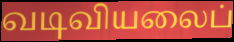
வடிவியலைப்